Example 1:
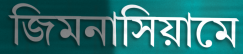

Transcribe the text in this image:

জিমনাসিয়ামে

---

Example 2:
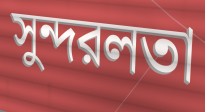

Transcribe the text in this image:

সুন্দরলতা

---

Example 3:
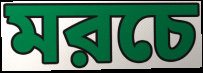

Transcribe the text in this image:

মরচে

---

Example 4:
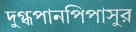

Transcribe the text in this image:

দুগ্ধপানপিপাসুর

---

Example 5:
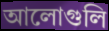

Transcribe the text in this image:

আলোগুলি